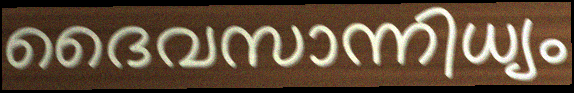
ദൈവസാന്നിധ്യം